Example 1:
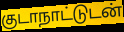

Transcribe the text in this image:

குடாநாட்டுடன்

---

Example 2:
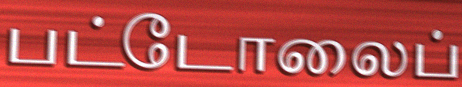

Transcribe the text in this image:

பட்டோலைப்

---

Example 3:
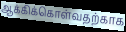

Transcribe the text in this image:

ஆக்கிக்கொள்வதற்காக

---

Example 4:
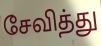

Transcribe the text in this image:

சேவித்து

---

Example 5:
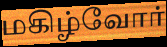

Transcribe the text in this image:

மகிழ்வோர்